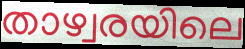
താഴ്വരയിലെ